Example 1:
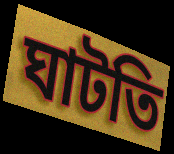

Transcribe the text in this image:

ঘাটতি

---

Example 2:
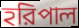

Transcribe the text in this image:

হরিপাল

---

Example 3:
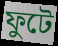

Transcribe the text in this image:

ফুটে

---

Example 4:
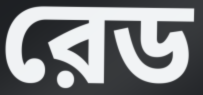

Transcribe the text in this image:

রেড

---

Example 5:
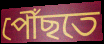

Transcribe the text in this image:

পৌঁছতে